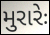
મુરારેઃ